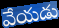
వేయడు